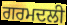
ਗਰਮਦਲੀ